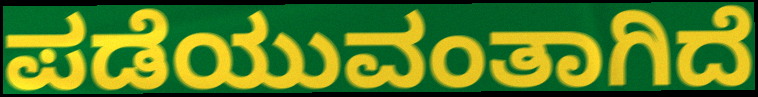
ಪಡೆಯುವಂತಾಗಿದೆ